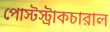
পোস্টস্ট্রাকচারাল